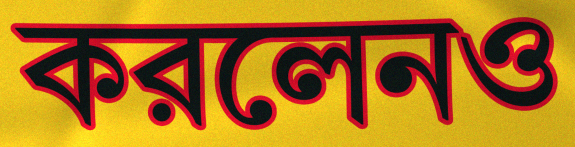
করলেনও